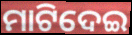
ମାଟିଦେଇ